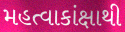
મહત્વાકાંક્ષાથી